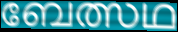
ബേത്സഥ